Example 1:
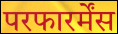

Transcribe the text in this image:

परफारर्मेंस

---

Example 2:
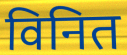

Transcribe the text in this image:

विनित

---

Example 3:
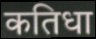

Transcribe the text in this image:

कतिधा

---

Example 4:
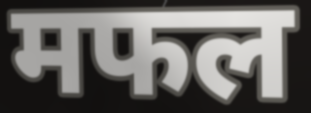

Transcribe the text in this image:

मफल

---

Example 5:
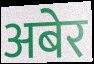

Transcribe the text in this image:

अबेर